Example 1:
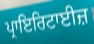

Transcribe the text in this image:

ਪ੍ਰਾਇਰਿਟਾਈਜ਼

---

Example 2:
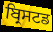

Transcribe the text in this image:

ਬ੍ਰਿਸਟਡ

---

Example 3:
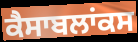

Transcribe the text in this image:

ਕੈਸਾਬਲਾਂਕਸ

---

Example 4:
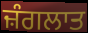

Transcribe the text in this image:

ਜ਼ੰਗਲਾਤ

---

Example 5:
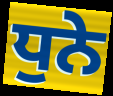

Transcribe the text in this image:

ਧੁਨੇ